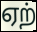
ஏற்